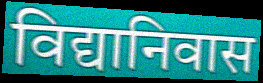
विद्यानिवास